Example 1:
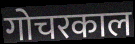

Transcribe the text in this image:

गोचरकाल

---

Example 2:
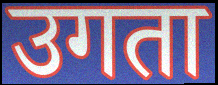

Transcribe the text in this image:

उगता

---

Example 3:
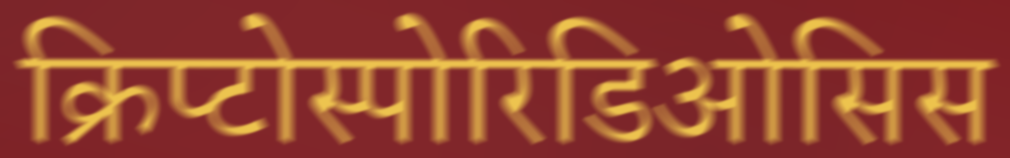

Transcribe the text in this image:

क्रिप्टोस्पोरिडिओसिस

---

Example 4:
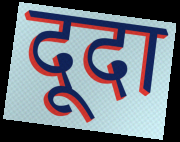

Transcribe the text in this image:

दूदा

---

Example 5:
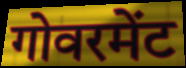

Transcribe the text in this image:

गोवरमेंट